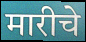
मारीचे